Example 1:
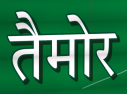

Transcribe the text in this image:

तैमोर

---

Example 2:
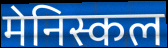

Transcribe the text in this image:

मेनिस्कल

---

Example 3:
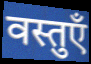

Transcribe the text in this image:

वस्‍तुएँ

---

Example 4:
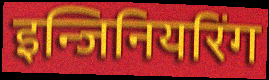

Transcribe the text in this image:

इन्जिनियरिंग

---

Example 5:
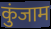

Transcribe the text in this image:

कुंजाम